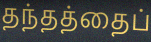
தந்தத்தைப்